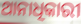
ଥାନାଧିକାରୀ